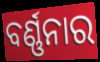
ବର୍ଣ୍ଣନାର